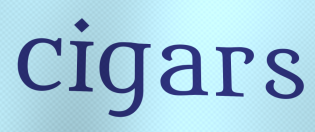
cigars